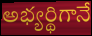
అభ్యర్థిగానే